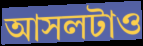
আসলটাও